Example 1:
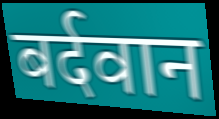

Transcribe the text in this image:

बर्दवान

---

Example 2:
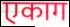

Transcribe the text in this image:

एकाग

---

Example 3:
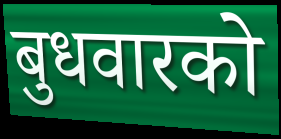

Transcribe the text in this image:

बुधवारको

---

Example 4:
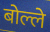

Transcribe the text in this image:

बोल्ले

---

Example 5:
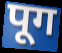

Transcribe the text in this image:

पूग